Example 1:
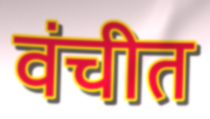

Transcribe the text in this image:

वंचीत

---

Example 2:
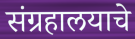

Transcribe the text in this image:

संग्रहालयाचे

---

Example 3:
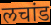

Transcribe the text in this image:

लचांड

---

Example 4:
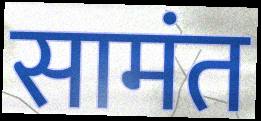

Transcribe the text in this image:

सामंत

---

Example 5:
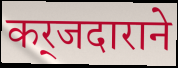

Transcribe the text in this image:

कर्जदाराने